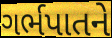
ગર્ભપાતને